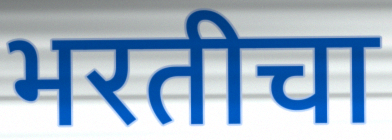
भरतीचा